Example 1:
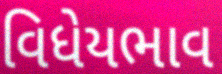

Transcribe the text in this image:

વિધેયભાવ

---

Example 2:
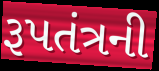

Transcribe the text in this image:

રૂપતંત્રની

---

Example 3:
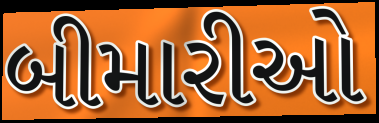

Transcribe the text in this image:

બીમારીઓ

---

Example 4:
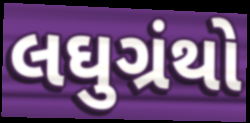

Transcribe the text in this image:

લઘુગ્રંથો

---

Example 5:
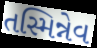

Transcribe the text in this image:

તસ્મિન્નેવ